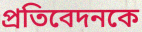
প্রতিবেদনকে